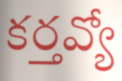
కర్తవ్యో